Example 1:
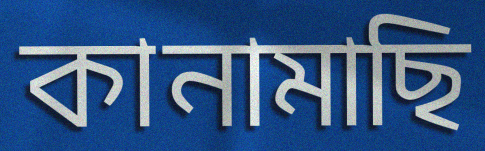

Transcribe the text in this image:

কানামাছি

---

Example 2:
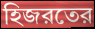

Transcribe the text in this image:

হিজরতের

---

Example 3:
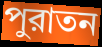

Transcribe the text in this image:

পুরাতন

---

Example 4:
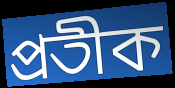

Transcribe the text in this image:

প্রতীক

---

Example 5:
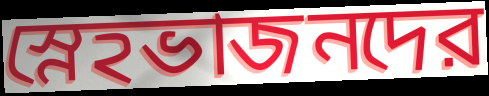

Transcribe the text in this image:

স্নেহভাজনদের